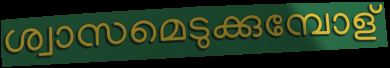
ശ്വാസമെടുക്കുമ്പോള്